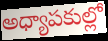
అధ్యాపకుల్లో